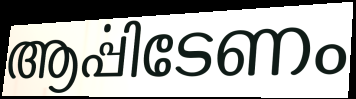
ആൎപ്പിടേണം